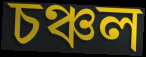
চঞ্চল